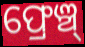
ଫ୍ରେଞ୍ଚ୍